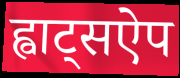
ह्वाट्सऐप